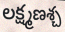
లక్ష్మణశ్చ